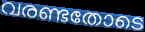
വരണ്ടതോടെ